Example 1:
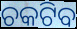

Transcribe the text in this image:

ଚକଟିବ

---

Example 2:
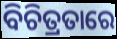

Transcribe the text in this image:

ବିଚିତ୍ରତାରେ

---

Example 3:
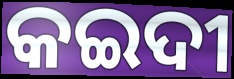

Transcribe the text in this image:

କଇଦୀ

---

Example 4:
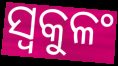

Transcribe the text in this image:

ସ୍ୱକୁଳଂ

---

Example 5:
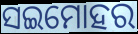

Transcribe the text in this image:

ସଇମୋହର